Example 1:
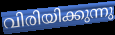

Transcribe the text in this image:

വിരിയിക്കുന്നു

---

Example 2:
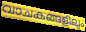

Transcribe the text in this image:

വാചകങ്ങളിലും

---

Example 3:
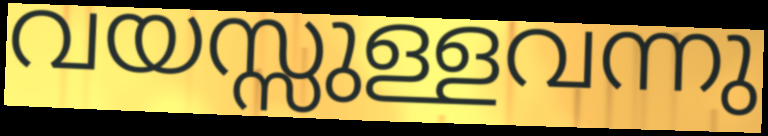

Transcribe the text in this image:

വയസ്സുള്ളവന്നു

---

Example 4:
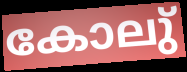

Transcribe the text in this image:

കോലു്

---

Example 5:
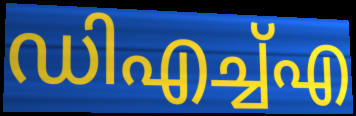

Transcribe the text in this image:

ഡിഎച്ച്എ